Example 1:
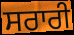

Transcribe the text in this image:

ਸਰਾਰੀ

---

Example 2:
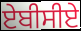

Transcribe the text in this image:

ਏਬੀਸੀਏ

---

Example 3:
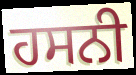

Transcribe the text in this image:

ਹਸਨੀ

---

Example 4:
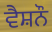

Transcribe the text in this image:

ਵੈਸ਼ਨੌ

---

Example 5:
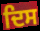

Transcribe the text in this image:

ਦਿਸ